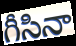
గీసినా